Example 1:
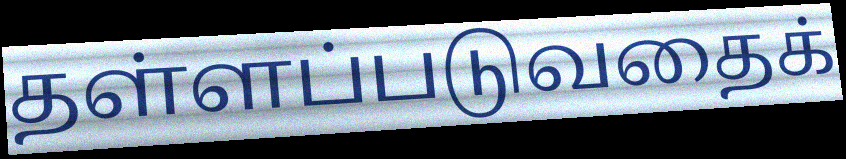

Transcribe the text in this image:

தள்ளப்படுவதைக்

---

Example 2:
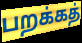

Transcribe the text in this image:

பறக்கத்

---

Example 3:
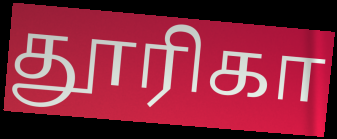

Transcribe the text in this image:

தூரிகா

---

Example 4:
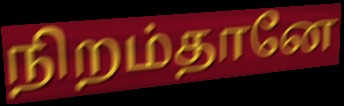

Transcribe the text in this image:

நிறம்தானே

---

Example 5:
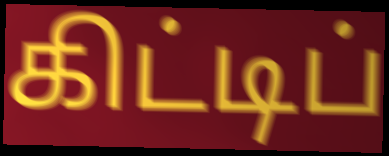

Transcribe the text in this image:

கிட்டிப்